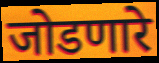
जोडणारे